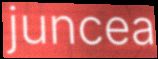
juncea